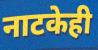
नाटकेही